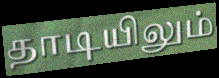
தாடியிலும்